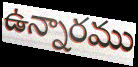
ఉన్నారము